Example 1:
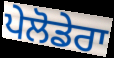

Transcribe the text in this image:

ਪੇਲੋਡੇਰਾ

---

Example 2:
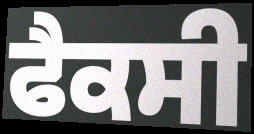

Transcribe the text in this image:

ਫੈਕਸੀ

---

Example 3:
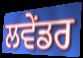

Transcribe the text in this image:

ਲਵੇਂਡਰ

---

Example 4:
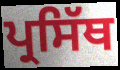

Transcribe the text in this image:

ਪ੍ਰਸਿੱਥ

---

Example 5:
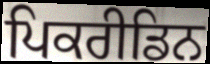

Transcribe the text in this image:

ਪਿਕਰੀਡਿਨ